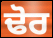
ਢੋਰ